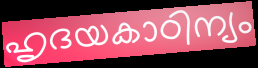
ഹൃദയകാഠിന്യം